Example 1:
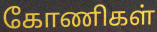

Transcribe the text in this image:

கோணிகள்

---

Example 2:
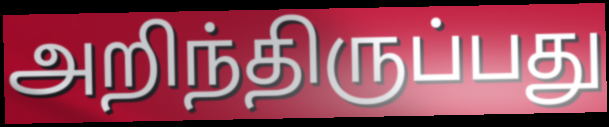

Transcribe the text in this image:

அறிந்திருப்பது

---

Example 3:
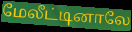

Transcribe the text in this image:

மேலீட்டினாலே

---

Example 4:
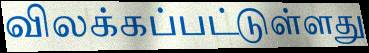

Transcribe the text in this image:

விலக்கப்பட்டுள்ளது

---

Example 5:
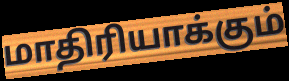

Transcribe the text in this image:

மாதிரியாக்கும்